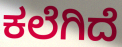
ಕಲೆಗಿದೆ